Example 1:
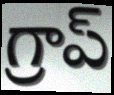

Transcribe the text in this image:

గ్రాప్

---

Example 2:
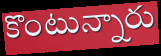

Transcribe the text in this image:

కొంటున్నారు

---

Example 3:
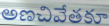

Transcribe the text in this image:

అణచివేతకూ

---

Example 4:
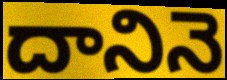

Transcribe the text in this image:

దానినె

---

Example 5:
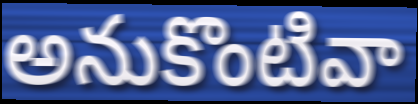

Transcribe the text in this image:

అనుకొంటివా